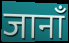
जानाँ